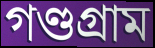
গণ্ডগ্রাম